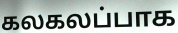
கலகலப்பாக